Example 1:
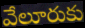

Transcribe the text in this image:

వేలూరుకు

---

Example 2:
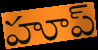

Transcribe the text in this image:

హూప్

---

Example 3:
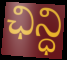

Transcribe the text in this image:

ఛిన్ధి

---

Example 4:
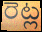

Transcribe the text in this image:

రెట్ల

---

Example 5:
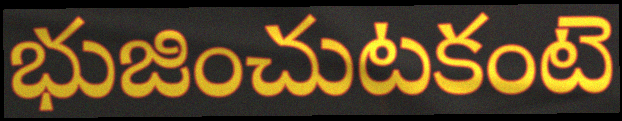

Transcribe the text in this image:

భుజించుటకంటె